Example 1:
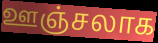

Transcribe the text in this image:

ஊஞ்சலாக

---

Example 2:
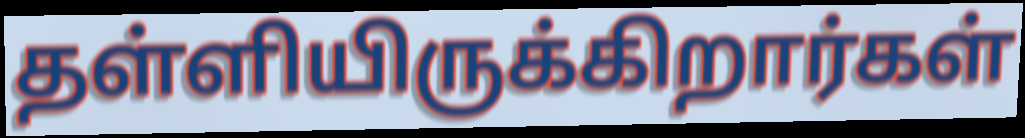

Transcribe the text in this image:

தள்ளியிருக்கிறார்கள்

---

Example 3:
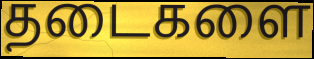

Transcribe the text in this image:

தடைகளை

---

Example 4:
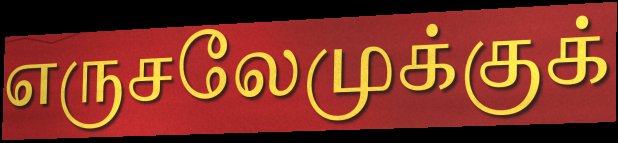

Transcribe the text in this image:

எருசலேமுக்குக்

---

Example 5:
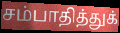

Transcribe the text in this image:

சம்பாதித்துக்